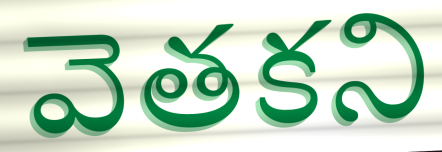
వెతకని